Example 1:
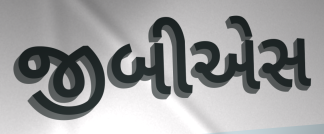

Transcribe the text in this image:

જીબીએસ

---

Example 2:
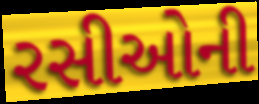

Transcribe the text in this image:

રસીઓની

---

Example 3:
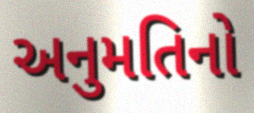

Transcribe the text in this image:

અનુમતિનો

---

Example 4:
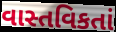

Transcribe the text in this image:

વાસ્તવિકતાં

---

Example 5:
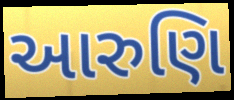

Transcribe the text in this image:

આરુણિ